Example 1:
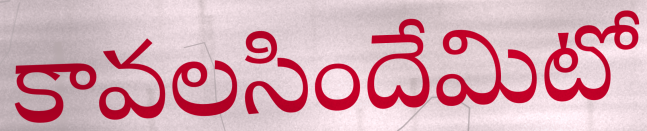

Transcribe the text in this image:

కావలసిందేమిటో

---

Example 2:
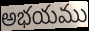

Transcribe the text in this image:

అభయము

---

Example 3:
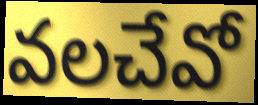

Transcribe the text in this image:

వలచేవో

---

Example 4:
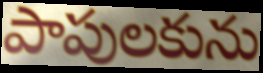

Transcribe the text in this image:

పాపులకును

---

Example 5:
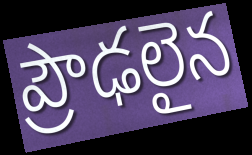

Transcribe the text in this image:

ప్రౌఢలైన